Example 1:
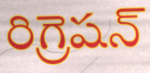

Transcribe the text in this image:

రిగ్రెషన్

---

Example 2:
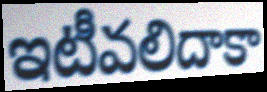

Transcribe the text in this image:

ఇటీవలిదాకా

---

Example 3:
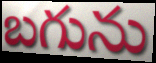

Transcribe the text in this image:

బగును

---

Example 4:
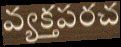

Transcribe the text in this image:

వ్యక్తపరచ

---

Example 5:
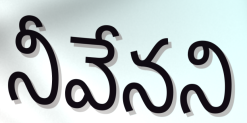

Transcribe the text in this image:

నీవేనని